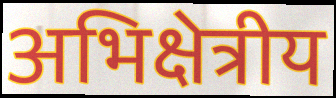
अभिक्षेत्रीय